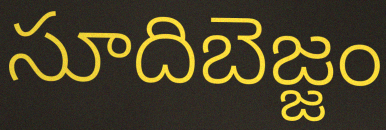
సూదిబెజ్జం